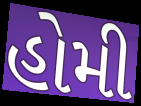
હોમી